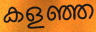
കളഞ്ഞ